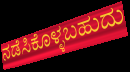
ನಡೆಸಿಕೊಳ್ಳಬಹುದು